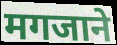
मगजाने